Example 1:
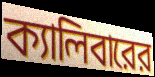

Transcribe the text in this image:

ক্যালিবারের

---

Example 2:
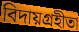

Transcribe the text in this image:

বিদায়গ্রহীতা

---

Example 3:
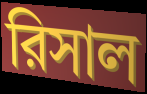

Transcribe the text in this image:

রিসাল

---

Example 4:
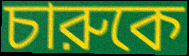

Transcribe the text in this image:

চারুকে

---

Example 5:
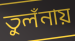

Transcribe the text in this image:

তুলঁনায়